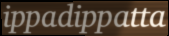
ippadippatta